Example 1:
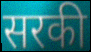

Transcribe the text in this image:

सरकी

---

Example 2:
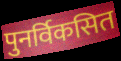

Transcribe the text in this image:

पुनर्विकसित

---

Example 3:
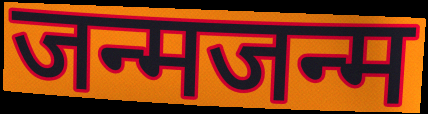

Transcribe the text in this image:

जन्मजन्म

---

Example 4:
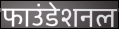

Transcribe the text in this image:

फाउंडेशनल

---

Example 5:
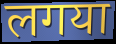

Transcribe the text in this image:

लगया